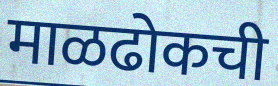
माळढोकची